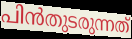
പിൻതുടരുന്നത്